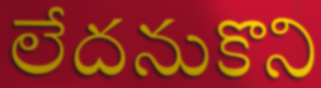
లేదనుకొని